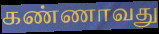
கண்ணாவது